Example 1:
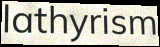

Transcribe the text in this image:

lathyrism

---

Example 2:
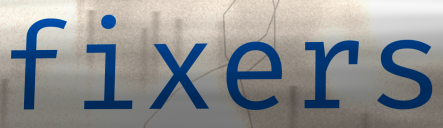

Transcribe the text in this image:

fixers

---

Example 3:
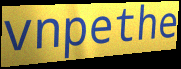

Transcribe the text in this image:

vnpethe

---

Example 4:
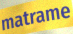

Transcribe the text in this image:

matrame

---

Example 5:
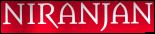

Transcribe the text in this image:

NIRANJAN